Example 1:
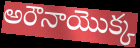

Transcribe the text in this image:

అరౌనాయొక్క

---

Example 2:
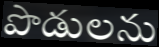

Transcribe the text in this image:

పొడులను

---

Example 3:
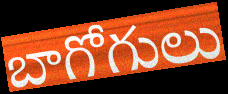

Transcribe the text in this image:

బాగోగులు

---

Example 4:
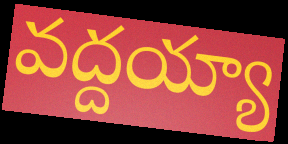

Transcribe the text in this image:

వద్దయ్యా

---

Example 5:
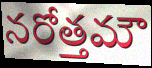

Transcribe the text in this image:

నరోత్తమౌ